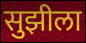
सुझीला